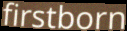
firstborn